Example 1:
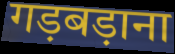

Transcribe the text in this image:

गड़बड़ाना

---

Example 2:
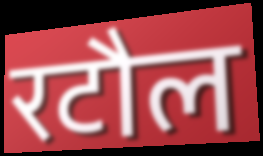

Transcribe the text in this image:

रटौल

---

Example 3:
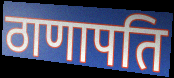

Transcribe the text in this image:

ठाणापति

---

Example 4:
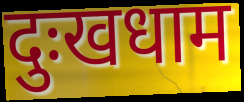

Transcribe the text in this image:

दुःखधाम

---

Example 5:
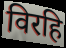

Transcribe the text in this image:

विरहि